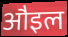
औइल